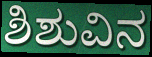
ಶಿಶುವಿನ